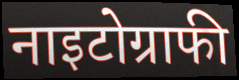
नाइटोग्राफी